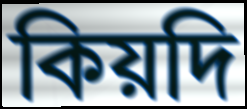
কিয়দি